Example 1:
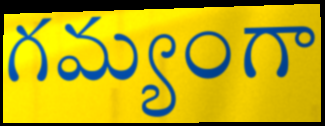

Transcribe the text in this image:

గమ్యంగా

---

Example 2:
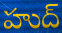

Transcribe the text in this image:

హుద్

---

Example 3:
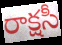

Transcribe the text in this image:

రాక్షసీ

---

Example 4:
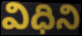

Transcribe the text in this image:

విధిని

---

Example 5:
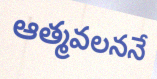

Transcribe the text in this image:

ఆత్మవలననే